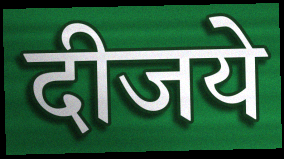
दीजये